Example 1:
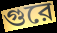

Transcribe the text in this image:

গুরে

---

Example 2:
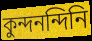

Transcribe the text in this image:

কুন্দনন্দিনি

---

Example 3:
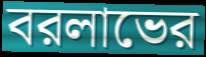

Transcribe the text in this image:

বরলাভের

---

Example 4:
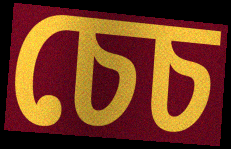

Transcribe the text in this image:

চেচ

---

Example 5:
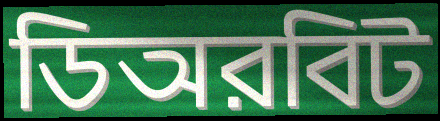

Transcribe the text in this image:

ডিঅরবিট